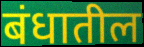
बंधातील